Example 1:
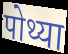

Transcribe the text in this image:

पोथ्या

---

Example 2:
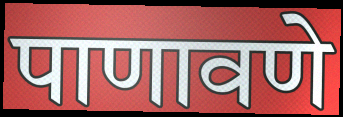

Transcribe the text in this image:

पाणावणे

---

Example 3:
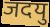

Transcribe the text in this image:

जदयु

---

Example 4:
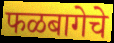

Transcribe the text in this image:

फळबागेचे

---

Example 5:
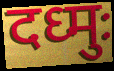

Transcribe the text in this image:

दध्मुः